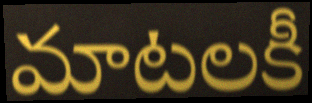
మాటలకీ